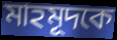
মাহমূদকে